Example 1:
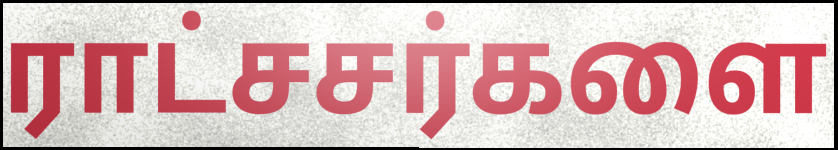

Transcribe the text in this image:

ராட்சசர்களை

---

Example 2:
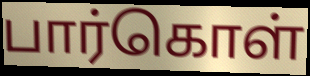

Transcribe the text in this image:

பார்கொள்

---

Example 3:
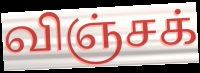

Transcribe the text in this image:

விஞ்சக்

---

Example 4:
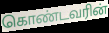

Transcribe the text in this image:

கொண்டவரின்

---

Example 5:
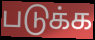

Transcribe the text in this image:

படுக்க